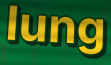
lung